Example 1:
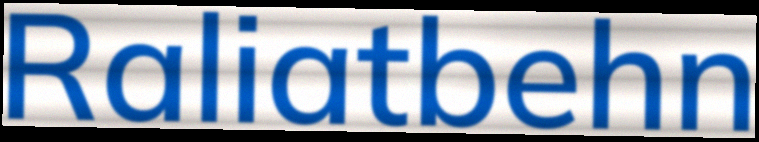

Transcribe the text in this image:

Raliatbehn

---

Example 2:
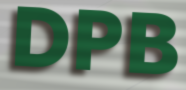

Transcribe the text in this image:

DPB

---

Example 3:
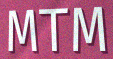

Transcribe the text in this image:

MTM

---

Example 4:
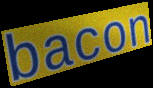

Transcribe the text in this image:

bacon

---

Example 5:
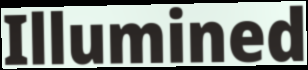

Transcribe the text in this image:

Illumined